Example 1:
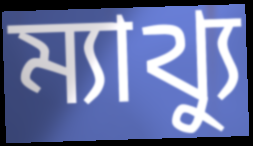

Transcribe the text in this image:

ম্যাথ্যু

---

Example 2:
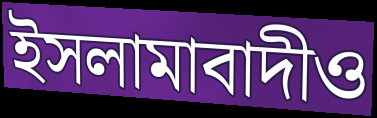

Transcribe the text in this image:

ইসলামাবাদীও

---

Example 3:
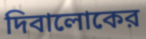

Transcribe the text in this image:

দিবালোকের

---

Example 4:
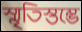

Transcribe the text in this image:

স্মৃতিস্তম্ভে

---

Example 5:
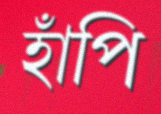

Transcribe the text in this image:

হাঁপি